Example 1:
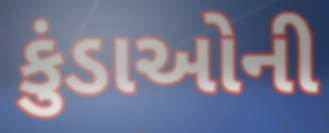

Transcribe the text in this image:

કુંડાઓની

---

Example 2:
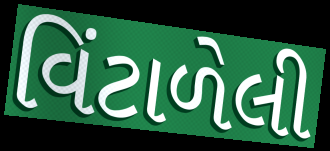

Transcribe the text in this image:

વિંટાળેલી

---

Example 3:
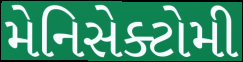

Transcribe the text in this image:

મેનિસેક્ટોમી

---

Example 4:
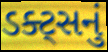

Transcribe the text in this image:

ડક્ટ્સનું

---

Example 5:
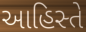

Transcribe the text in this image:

આહિસ્તે